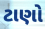
ટાણો